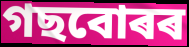
গছবোৰৰ